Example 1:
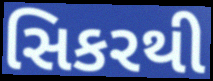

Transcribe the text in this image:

સિકરથી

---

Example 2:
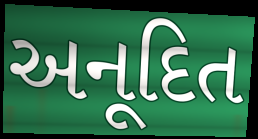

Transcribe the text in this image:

અનૂદિત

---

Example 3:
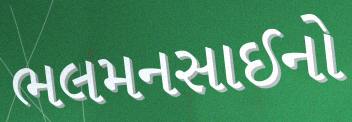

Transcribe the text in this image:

ભલમનસાઈનો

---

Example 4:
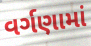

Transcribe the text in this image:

વર્ગણામાં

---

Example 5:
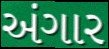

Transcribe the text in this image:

અંગાર